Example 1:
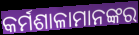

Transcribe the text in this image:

କର୍ମଶାଳାମାନଙ୍କର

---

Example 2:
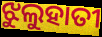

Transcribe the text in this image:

ଝୁଲୁହାତୀ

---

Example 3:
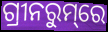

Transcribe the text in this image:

ଗ୍ରୀନରୁମ୍‌ରେ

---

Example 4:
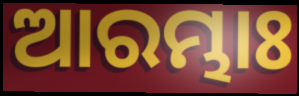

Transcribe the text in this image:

ଆରମ୍ଭାଃ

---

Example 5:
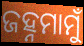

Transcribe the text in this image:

ଜହ୍ନମାମୁଁ